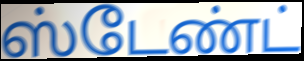
ஸ்டேண்ட்